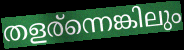
തളര്ന്നെങ്കിലും